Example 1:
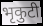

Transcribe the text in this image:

भृकुटी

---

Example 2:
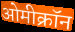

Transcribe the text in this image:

ओमीक्रॉन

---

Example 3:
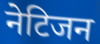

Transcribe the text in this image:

नेटिजन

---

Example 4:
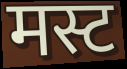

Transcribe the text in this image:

मस्ट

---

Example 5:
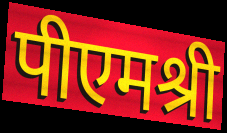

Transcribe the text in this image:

पीएमश्री